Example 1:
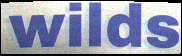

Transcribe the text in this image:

wilds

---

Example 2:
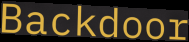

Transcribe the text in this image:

Backdoor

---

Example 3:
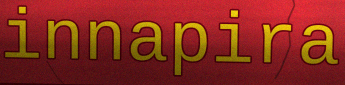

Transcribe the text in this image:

innapira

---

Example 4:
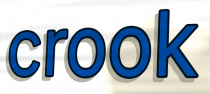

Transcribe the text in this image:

crook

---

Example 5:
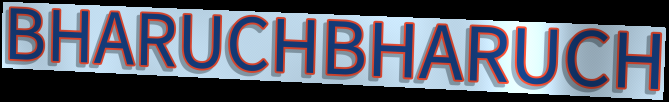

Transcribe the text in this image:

BHARUCHBHARUCH